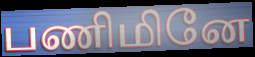
பணிமினே